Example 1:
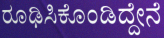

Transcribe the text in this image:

ರೂಢಿಸಿಕೊಂಡಿದ್ದೇನೆ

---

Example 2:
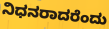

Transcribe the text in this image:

ನಿಧನರಾದರೆಂದು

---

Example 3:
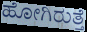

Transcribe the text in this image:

ಹೋಗಿರುತ್ತೆ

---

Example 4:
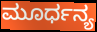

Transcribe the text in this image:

ಮೂರ್ಧನ್ಯ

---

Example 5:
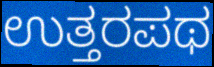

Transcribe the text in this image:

ಉತ್ತರಪಥ